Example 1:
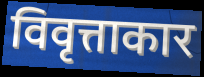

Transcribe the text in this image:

विवृत्ताकार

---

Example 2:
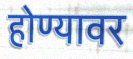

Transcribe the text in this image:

होण्यावर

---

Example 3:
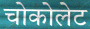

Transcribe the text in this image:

चोकोलेट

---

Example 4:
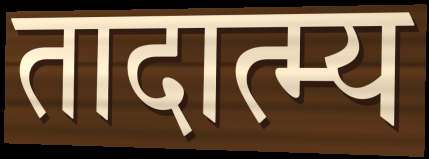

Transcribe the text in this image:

तादात्म्य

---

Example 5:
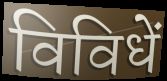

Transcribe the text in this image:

विविधें